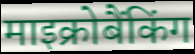
माइक्रोबैंकिंग